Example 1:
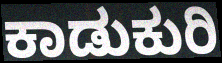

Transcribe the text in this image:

ಕಾಡುಕುರಿ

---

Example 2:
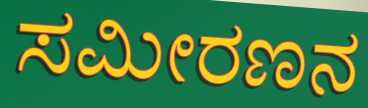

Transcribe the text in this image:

ಸಮೀರಣನ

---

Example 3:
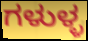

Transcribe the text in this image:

ಗಳುಳ್ಳ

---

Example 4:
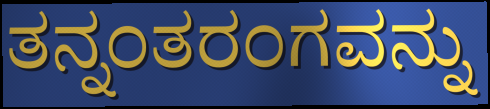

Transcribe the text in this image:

ತನ್ನಂತರಂಗವನ್ನು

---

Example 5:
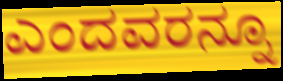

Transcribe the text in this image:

ಎಂದವರನ್ನೂ